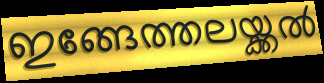
ഇങ്ങേത്തലയ്ക്കൽ